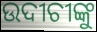
ଉଦୀଚୀଙ୍କୁ